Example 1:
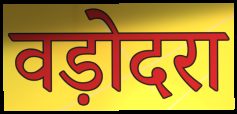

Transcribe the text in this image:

वड़ोदरा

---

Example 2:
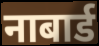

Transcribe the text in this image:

नाबार्ड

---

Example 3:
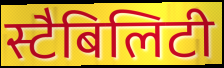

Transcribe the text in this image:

स्टैबिलिटी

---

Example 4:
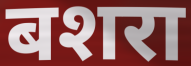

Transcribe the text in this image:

बशरा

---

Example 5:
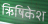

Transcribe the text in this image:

ऋिषिकेश